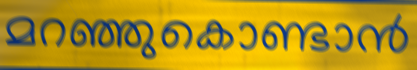
മറഞ്ഞുകൊണ്ടാൻ